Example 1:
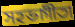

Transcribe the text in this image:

সহভাগীতা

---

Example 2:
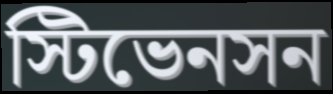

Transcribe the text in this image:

স্টিভেনসন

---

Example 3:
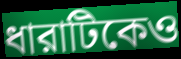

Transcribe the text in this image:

ধারাটিকেও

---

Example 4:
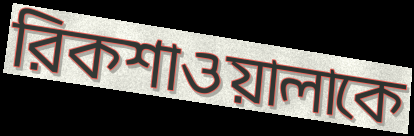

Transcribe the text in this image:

রিকশাওয়ালাকে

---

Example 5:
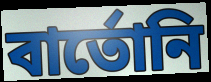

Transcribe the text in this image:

বার্তোনি